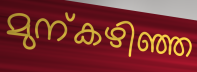
മുന്കഴിഞ്ഞ